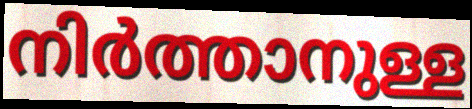
നിർത്താനുള്ള